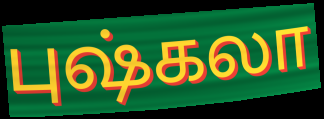
புஷ்கலா